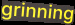
grinning